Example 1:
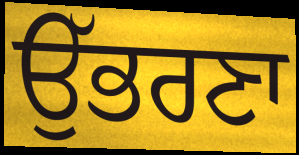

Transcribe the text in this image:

ਉੱਭਰਣਾ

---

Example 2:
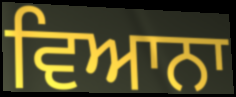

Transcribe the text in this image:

ਵਿਆਨਾ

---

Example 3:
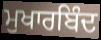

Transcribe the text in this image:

ਮੁਖਾਰਬਿੰਦ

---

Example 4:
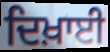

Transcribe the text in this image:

ਦਿਖ਼ਾਈ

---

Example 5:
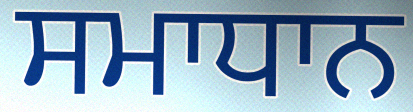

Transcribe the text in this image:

ਸਮਾਧਾਨ